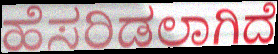
ಹೆಸರಿಡಲಾಗಿದೆ